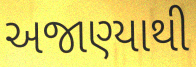
અજાણ્યાથી